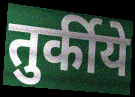
तुर्कीये